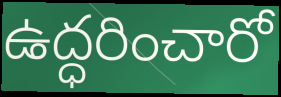
ఉద్ధరించారో